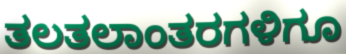
ತಲತಲಾಂತರಗಳಿಗೂ